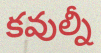
కవుల్నీ